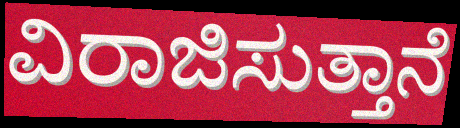
ವಿರಾಜಿಸುತ್ತಾನೆ